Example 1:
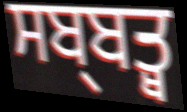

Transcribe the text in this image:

ਸਬ੍ਬਤ੍ਥ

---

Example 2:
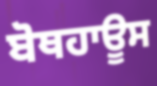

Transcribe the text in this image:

ਬੋਥਹਾਊਸ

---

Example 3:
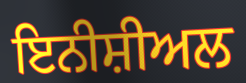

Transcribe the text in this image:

ਇਨੀਸ਼ੀਅਲ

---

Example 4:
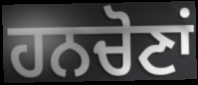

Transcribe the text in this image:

ਹਨਚੋਣਾਂ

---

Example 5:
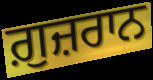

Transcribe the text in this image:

ਗ਼ੁਜ਼ਰਾਨ